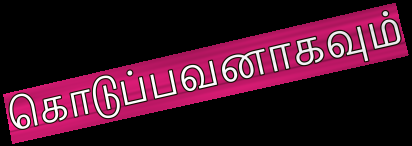
கொடுப்பவனாகவும்